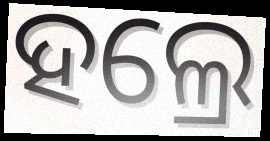
ହଲ୍ରେ